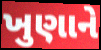
ખુણાને